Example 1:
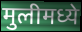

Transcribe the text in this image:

मुलीमध्ये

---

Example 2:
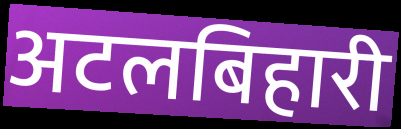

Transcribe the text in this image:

अटलबिहारी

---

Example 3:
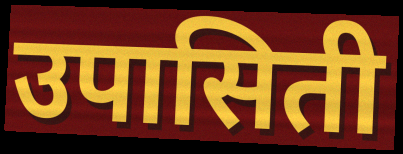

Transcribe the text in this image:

उपासिती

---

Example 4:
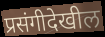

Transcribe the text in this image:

प्रसंगीदेखील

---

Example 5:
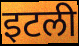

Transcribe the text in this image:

इटली